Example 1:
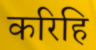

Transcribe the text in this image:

करिहि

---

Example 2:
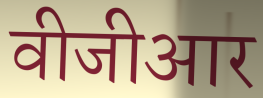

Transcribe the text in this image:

वीजीआर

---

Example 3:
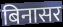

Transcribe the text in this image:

बिनासर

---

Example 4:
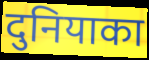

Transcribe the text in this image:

दुनियाका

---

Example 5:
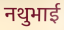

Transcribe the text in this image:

नथुभाई